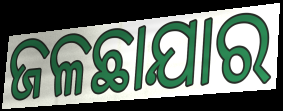
ଜଳଛାଯାର